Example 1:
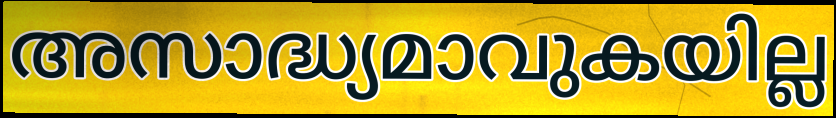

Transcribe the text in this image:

അസാദ്ധ്യമാവുകയില്ല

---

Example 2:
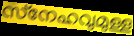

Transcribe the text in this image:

സ്‌നേഹവുമുള്ള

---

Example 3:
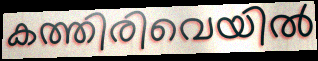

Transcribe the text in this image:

കത്തിരിവെയിൽ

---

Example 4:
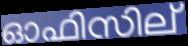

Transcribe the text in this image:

ഓഫിസില്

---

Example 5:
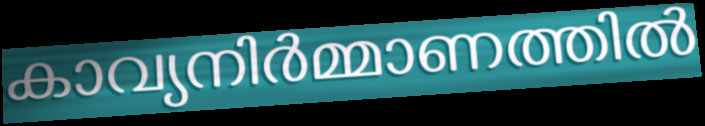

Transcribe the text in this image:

കാവ്യനിർമ്മാണത്തിൽ